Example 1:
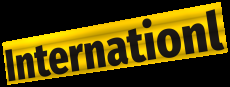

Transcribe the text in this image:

Internationl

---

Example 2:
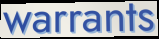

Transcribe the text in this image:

warrants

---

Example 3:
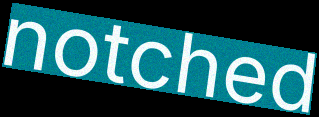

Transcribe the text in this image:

notched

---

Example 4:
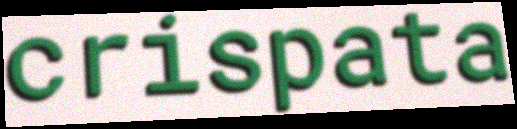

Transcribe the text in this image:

crispata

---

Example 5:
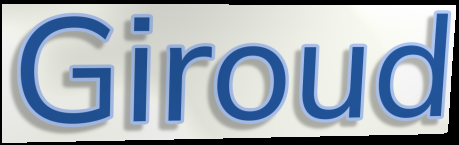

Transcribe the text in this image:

Giroud